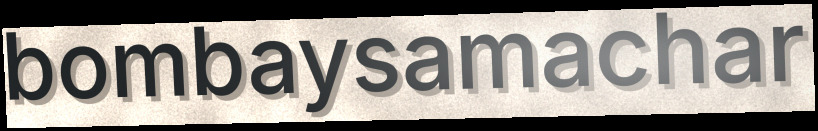
bombaysamachar